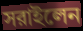
সরাইলেন